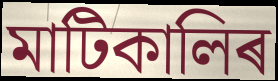
মাটিকালিৰ